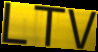
LTV